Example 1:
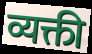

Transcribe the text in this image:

व्यक्ती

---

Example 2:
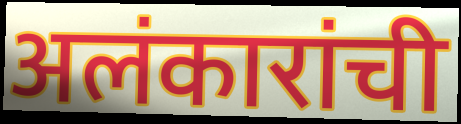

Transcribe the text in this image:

अलंकारांची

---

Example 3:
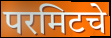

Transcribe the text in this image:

परमिटचे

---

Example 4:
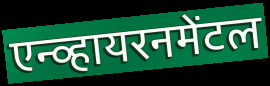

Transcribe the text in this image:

एन्व्हायरनमेंटल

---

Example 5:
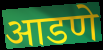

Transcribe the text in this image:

आडणे